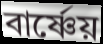
বার্ষ্ণেয়